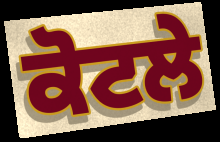
ਕੋਟਲੇ